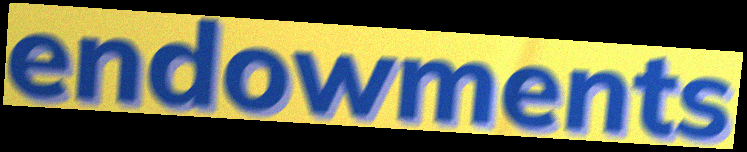
endowments